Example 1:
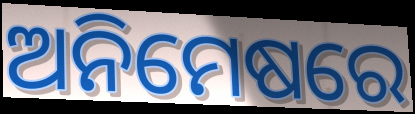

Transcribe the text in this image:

ଅନିମେଷରେ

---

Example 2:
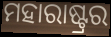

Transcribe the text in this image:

ମହାରାଷ୍ଟ୍ରର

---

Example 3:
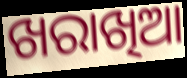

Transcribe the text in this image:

ଖରାଖିଆ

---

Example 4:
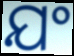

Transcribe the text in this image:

ଯଂ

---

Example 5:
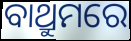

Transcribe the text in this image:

ବାଥ୍ରୁମରେ